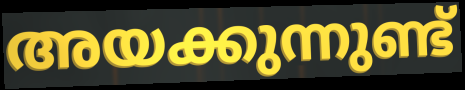
അയക്കുന്നുണ്ട്